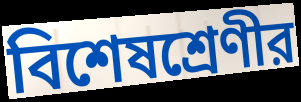
বিশেষশ্রেণীর